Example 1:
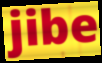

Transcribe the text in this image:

jibe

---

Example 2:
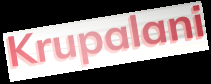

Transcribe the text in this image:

Krupalani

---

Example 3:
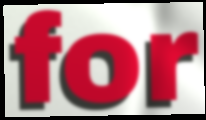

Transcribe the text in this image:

for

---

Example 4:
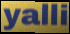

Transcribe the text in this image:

yalli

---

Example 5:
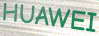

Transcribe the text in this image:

HUAWEI